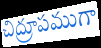
చిద్రూపముగా